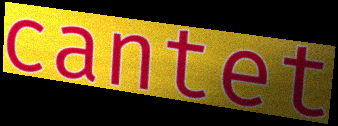
cantet